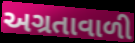
અગ્રતાવાળી